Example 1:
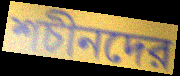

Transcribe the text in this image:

শচীনদের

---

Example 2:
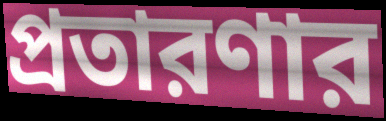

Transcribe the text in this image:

প্রতারণার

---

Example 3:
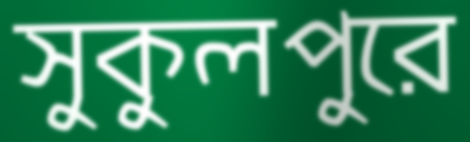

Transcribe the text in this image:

সুকুলপুরে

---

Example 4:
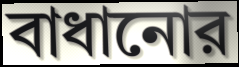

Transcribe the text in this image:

বাধানোর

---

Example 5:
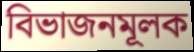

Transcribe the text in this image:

বিভাজনমূলক